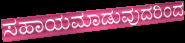
ಸಹಾಯಮಾಡುವುದರಿಂದ